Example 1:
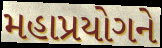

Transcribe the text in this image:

મહાપ્રયોગને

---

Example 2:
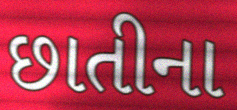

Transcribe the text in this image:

છાતીના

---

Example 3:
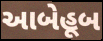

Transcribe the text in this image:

આબેહૂબ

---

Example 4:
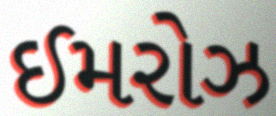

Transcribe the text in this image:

ઈમરોઝ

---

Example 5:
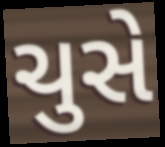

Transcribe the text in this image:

ચુસે